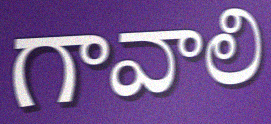
గావాలి